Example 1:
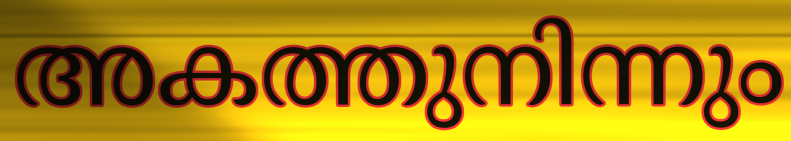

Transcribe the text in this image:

അകത്തുനിന്നും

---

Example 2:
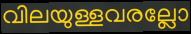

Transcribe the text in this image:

വിലയുള്ളവരല്ലോ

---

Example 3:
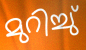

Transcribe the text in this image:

മുറിച്ചു്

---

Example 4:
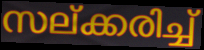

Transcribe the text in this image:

സല്ക്കരിച്ച്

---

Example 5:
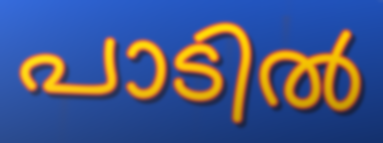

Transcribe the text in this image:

പാടിൽ